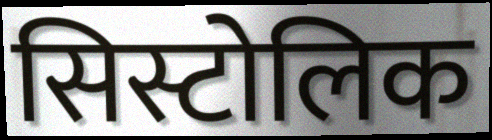
सिस्टोलिक